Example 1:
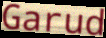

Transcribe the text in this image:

Garud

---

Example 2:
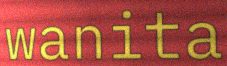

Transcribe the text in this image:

wanita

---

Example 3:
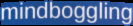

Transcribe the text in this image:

mindboggling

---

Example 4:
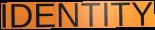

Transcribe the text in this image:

IDENTITY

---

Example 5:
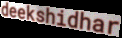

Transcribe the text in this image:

deekshidhar